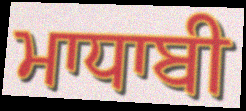
ਮਾਧਾਬੀ